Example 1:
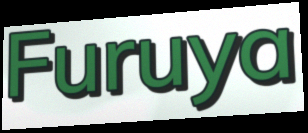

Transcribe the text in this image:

Furuya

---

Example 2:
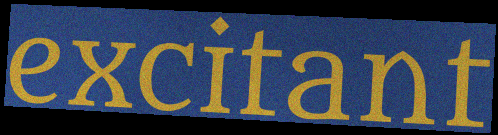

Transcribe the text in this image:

excitant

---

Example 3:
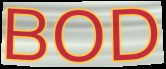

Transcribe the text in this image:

BOD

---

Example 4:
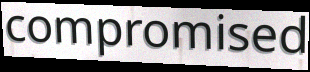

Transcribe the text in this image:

compromised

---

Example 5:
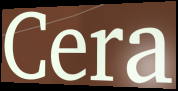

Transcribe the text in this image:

Cera